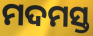
ମଦମସ୍ତ